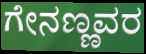
ಗೇನಣ್ಣವರ